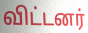
விட்டனர்